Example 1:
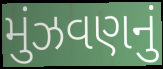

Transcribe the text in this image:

મુંઝવણનું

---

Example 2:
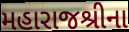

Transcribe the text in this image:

મહારાજશ્રીના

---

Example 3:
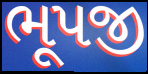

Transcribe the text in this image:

ભૂપજી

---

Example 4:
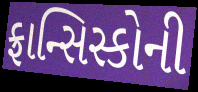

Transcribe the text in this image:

ફ્રાન્સિસ્કોની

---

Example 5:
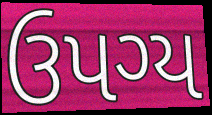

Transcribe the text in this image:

ઉપગ્ય